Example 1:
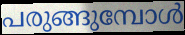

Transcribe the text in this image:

പരുങ്ങുമ്പോൾ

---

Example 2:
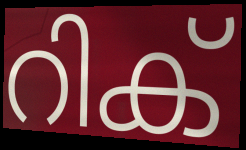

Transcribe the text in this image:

റിക്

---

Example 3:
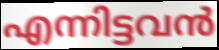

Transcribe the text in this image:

എന്നിട്ടവൻ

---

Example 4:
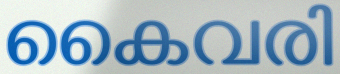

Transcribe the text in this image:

കൈവരി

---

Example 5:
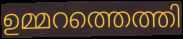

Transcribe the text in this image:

ഉമ്മറത്തെത്തി